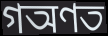
গঅণত